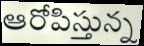
ఆరోపిస్తున్న